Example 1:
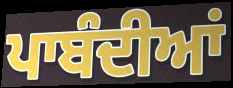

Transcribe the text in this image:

ਪਾਬੰਦੀਆਂ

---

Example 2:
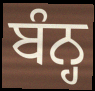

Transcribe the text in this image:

ਬੰਨ੍ਹ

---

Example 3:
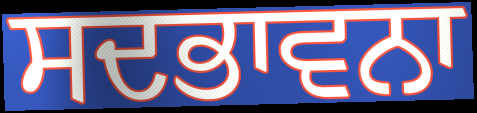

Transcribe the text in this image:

ਸਦਭਾਵਨਾ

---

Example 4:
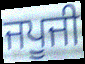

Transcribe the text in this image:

ਜਪੂਜੀ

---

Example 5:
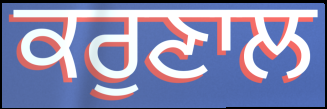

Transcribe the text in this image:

ਕਰੁਣਾਲ